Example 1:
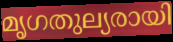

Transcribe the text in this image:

മൃഗതുല്യരായി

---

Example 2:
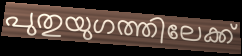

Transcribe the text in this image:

പുതുയുഗത്തിലേക്ക്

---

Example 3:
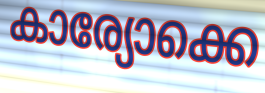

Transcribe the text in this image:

കാര്യോക്കെ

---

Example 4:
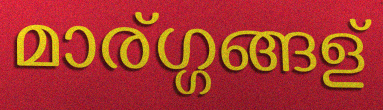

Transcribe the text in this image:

മാര്ഗ്ഗങ്ങള്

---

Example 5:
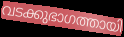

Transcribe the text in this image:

വടക്കുഭാഗത്തായി